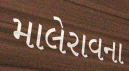
માલેરાવના